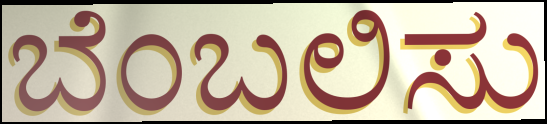
ಬೆಂಬಲಿಸು